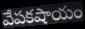
వేపకషాయం